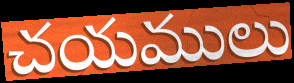
చయములు